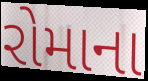
રોમાના